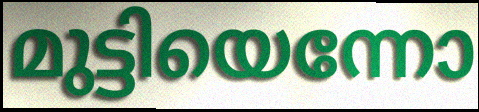
മുട്ടിയെന്നോ